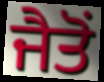
ਜੈਤੋਂ